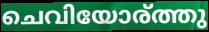
ചെവിയോര്ത്തു